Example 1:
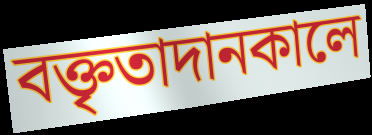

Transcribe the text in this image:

বক্তৃতাদানকালে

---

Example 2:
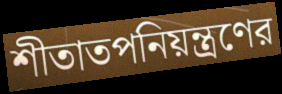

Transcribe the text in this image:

শীতাতপনিয়ন্ত্রণের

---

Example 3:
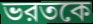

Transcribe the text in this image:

ভরতকে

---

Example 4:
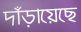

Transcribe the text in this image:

দাঁড়ায়েছে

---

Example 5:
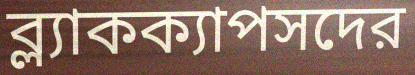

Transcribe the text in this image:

ব্ল্যাকক্যাপসদের